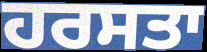
ਹਰਸਤਾ